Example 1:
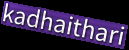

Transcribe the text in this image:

kadhaithari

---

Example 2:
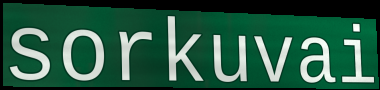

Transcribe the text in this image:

sorkuvai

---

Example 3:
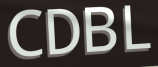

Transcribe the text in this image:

CDBL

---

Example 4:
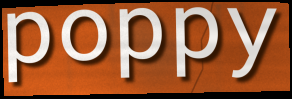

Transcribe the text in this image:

poppy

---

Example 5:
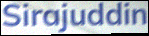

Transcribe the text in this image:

Sirajuddin